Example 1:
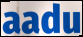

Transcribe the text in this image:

aadu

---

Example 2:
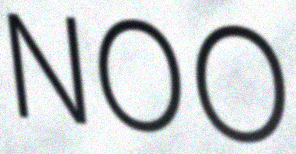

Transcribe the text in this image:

NOO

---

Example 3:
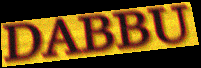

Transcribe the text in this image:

DABBU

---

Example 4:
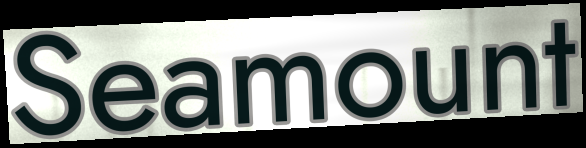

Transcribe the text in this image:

Seamount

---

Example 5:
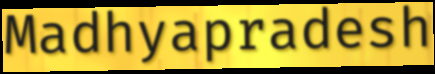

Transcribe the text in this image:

Madhyapradesh